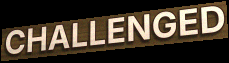
CHALLENGED